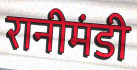
रानीमंडी